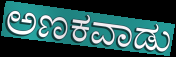
ಅಣಕವಾಡು